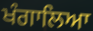
ਖੰਗਾਲਿਆ